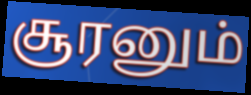
சூரனும்